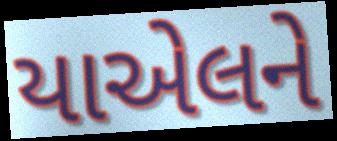
યાએલને